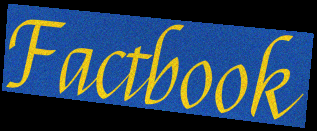
Factbook